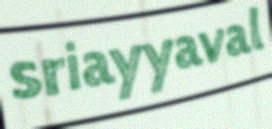
sriayyaval